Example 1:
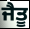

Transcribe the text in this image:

ਜੈਤੂ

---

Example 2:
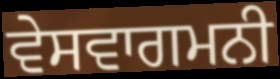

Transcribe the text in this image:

ਵੇਸਵਾਗਮਨੀ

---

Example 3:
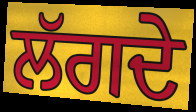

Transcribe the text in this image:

ਲੱਗਦੇ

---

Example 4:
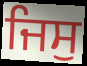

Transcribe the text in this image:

ਜਿਸੁ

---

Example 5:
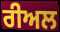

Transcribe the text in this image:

ਰੀਅਲ